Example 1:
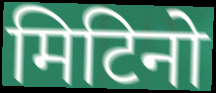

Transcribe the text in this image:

मिटिनो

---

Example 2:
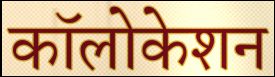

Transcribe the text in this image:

कॉलोकेशन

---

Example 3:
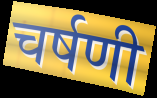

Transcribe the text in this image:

चर्षणी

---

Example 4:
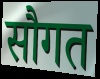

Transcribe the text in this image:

सौगत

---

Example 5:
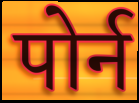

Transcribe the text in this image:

पोर्न